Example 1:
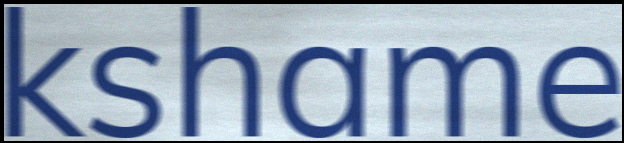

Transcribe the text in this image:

kshame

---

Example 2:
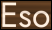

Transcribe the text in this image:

Eso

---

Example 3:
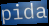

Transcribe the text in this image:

pida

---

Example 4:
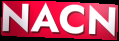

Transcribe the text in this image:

NACN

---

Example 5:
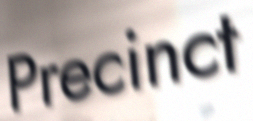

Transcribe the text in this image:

Precinct